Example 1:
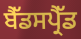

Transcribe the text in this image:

ਬੈੱਡਸਪ੍ਰੈੱਡ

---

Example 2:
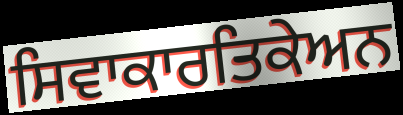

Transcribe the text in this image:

ਸਿਵਾਕਾਰਤਿਕੇਅਨ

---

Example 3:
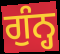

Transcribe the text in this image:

ਗੁੰਨ੍ਹ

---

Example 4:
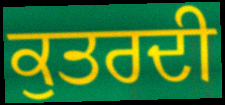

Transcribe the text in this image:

ਕੁਤਰਦੀ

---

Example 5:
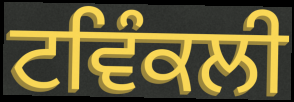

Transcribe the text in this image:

ਟਵਿੰਕਲੀ